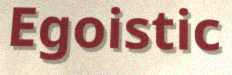
Egoistic